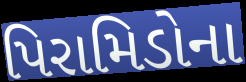
પિરામિડોના